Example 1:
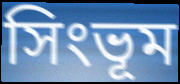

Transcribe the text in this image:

সিংভূম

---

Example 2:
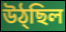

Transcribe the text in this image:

উঠ্ছিল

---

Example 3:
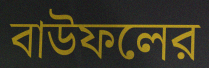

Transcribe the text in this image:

বাউফলের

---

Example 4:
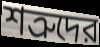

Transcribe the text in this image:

শত্রুদের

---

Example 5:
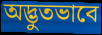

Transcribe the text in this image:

অদ্ভুতভাবে